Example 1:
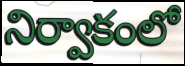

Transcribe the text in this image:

నిర్వాకంలో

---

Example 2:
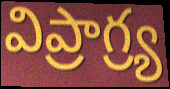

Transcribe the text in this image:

విప్రాగ్ర్య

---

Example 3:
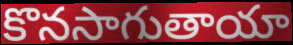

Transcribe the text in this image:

కొనసాగుతాయా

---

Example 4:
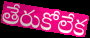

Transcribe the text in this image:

తేరుకోలేక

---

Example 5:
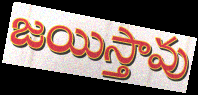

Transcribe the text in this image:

జయిస్తావు